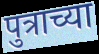
पुत्राच्या